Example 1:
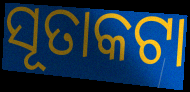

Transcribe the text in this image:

ସୂତାକଟା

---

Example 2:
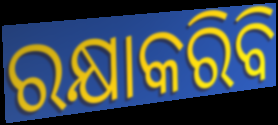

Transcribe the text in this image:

ରକ୍ଷାକରିବି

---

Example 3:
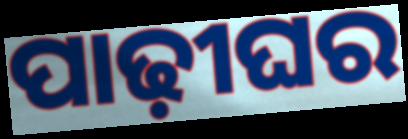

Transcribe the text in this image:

ପାଢ଼ୀଘର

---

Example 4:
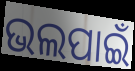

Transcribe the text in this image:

ଭଲପାଇଁ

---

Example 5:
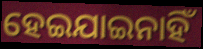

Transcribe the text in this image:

ହେଇଯାଇନାହିଁ